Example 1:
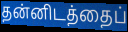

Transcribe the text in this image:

தன்னிடத்தைப்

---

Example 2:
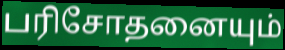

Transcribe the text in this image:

பரிசோதனையும்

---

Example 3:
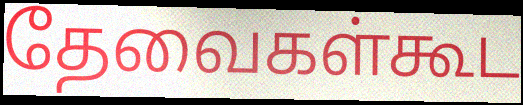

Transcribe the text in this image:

தேவைகள்கூட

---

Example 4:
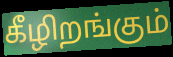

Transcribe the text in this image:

கீழிறங்கும்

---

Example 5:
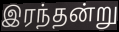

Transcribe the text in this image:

இரந்தன்று